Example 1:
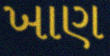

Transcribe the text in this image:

ખાણ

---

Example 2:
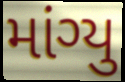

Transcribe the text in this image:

માંગ્યુ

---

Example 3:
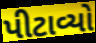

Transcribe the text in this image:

પીટાવ્યો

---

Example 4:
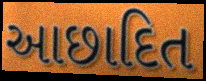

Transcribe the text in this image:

આછાદિત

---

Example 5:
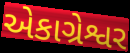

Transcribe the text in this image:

એકાગ્રેશ્વર